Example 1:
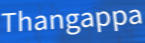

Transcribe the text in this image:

Thangappa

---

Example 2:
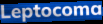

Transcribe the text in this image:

Leptocoma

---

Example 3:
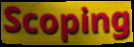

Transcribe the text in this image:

Scoping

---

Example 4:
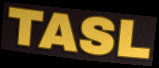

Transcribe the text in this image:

TASL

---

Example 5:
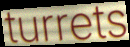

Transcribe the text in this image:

turrets